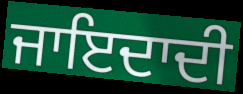
ਜਾਇਦਾਦੀ